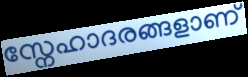
സ്നേഹാദരങ്ങളാണ്